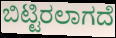
ಬಿಟ್ಟಿರಲಾಗದೆ